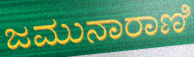
ಜಮುನಾರಾಣಿ